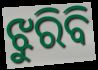
ଝୁରିବି